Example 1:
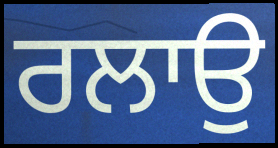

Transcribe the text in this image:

ਰਲਾਉ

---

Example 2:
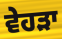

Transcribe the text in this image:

ਵੇਹੜਾ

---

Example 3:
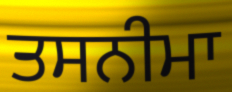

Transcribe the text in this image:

ਤਸਨੀਮਾ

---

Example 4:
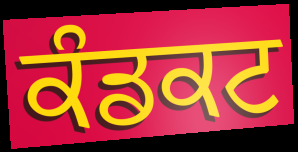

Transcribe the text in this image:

ਕੰਡਕਟ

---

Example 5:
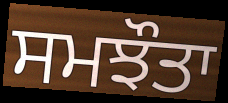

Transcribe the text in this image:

ਸਮਝੌਤਾ